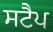
ਸਟੈਪ